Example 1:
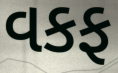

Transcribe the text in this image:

વકફ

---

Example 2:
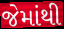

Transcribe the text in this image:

જેમાંથી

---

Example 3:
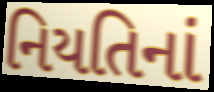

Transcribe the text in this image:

નિયતિનાં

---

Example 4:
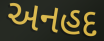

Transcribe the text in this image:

અનહદ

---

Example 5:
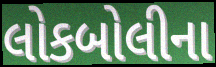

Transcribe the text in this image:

લોકબોલીના